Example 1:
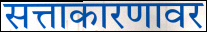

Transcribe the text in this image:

सत्ताकारणावर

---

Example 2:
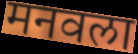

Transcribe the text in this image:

मनवला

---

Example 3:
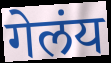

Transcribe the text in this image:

गेलंय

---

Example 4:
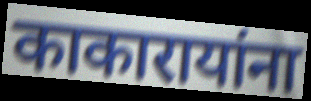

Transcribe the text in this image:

काकारायांना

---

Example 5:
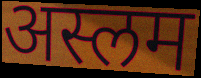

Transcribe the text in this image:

अस्लम